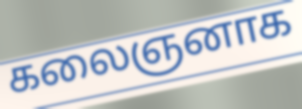
கலைஞனாக